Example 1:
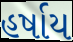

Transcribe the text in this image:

હર્ષાય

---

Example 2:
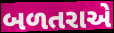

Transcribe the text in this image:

બળતરાએ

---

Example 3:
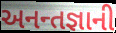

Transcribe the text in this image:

અનન્તજ્ઞાની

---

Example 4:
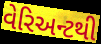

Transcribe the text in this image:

વેરિઅન્ટથી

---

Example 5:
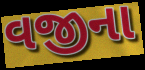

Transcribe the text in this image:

વજીના